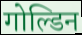
गोल्डिन